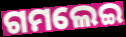
ଗମଲେଇ